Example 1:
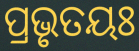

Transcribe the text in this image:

ପ୍ରଭୃତୟଃ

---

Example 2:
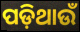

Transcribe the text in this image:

ପଡ଼ିଥାଉଁ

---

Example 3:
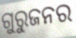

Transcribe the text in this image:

ଗୁରୁଜନର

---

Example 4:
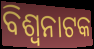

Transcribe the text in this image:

ବିଶ୍ୱନାଟକ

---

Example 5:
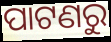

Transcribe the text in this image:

ପାଟଣରୁ